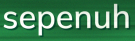
sepenuh